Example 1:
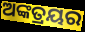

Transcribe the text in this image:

ଅଙ୍କତ୍ରୟର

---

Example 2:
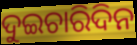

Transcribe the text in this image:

ଦୁଇଚାରିଦିନ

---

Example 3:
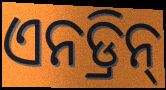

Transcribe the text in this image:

ଏନଡ୍ରିନ୍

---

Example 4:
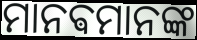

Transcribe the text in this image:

ମାନଵମାନଙ୍କ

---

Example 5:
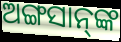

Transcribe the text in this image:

ଅଙ୍ଗସାନ୍‌ଙ୍କ